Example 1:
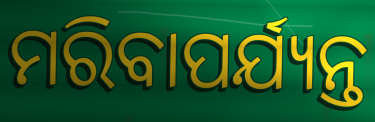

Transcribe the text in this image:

ମରିବାପର୍ଯ୍ୟନ୍ତ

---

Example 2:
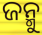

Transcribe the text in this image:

ଜନ୍ମୁ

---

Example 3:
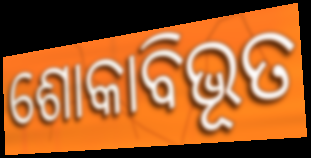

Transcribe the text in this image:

ଶୋକାବିଭୂତ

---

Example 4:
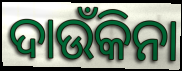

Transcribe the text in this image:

ଦାଉଁକିନା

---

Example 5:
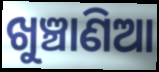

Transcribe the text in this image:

ଖୁଞ୍ଚାଣିଆ